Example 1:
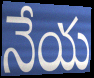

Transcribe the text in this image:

నేయ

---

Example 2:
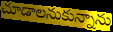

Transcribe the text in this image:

చూడాలనుకున్నాను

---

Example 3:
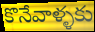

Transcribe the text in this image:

కొనేవాళ్ళకు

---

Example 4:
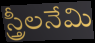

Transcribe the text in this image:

స్త్రీలనేమి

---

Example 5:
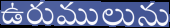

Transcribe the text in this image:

ఉరుములును